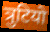
त्रुटियो